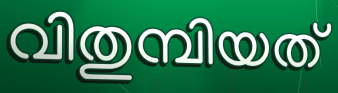
വിതുമ്പിയത്